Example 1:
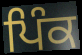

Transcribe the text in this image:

ਪਿੰਕ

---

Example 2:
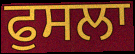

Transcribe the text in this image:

ਫੁਸਲਾ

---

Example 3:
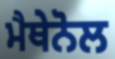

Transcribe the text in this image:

ਮੈਥੇਨੋਲ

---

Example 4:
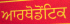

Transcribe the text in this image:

ਆਰਥੋਡੋਂਟਿਕ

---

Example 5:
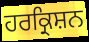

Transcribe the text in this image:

ਹਰਕ੍ਰਿਸ਼ਨ